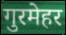
गुरमेहर